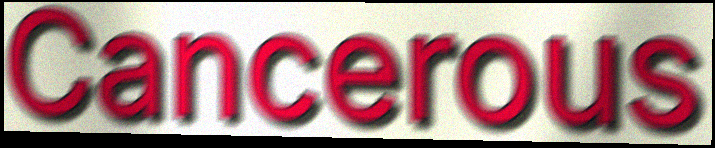
Cancerous